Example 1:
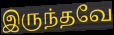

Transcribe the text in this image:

இருந்தவே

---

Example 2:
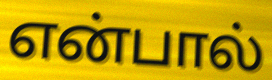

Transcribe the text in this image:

என்பால்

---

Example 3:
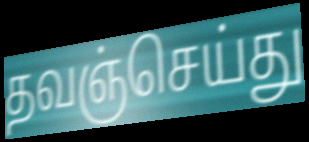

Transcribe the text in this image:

தவஞ்செய்து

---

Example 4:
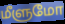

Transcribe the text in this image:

மீளுமோ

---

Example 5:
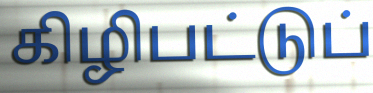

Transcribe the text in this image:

கிழிபட்டுப்